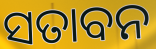
ସତାବନ